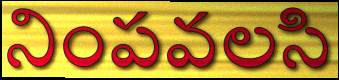
నింపవలసి